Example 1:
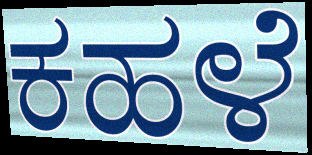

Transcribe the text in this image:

ಕಹಳೆ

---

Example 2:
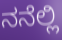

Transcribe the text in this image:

ನನೆಲ್ಲಿ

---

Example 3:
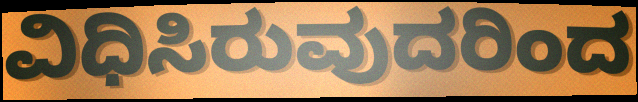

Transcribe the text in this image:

ವಿಧಿಸಿರುವುದರಿಂದ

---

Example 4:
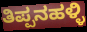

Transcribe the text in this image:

ತಿಪ್ಪನಹಳ್ಳಿ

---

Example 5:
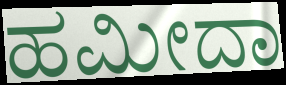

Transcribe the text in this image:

ಹಮೀದಾ